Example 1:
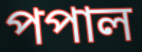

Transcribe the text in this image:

পপাল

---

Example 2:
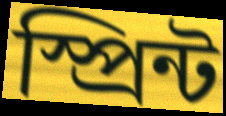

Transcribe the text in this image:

স্প্রিন্ট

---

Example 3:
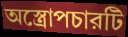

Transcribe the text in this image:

অস্ত্রোপচারটি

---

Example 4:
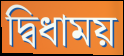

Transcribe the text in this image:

দ্বিধাময়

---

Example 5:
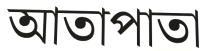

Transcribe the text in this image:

আতাপাতা